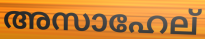
അസാഹേല്